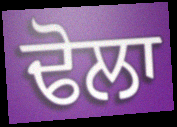
ਢੋਲਾ